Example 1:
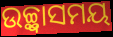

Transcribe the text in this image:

ଉଚ୍ଛ୍ଵାସମୟ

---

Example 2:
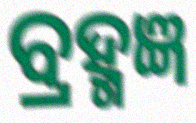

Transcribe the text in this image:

ବ୍ରହ୍ମଜ୍ଞ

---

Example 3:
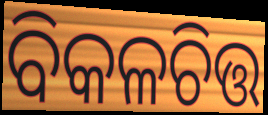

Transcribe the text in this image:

ବିକଳଚିତ୍ତ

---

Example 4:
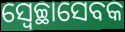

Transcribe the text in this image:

ସ୍ୱେଚ୍ଛାସେବକ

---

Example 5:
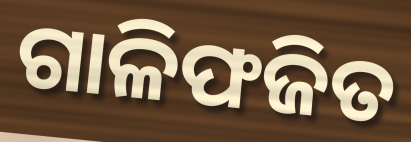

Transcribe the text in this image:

ଗାଳିଫଜିତ